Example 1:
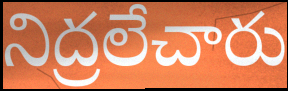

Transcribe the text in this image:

నిద్రలేచారు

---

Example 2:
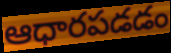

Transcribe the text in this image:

ఆధారపడడం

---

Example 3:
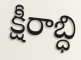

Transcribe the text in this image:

క్షీరాబ్ధి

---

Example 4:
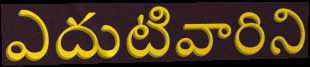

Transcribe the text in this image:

ఎదుటివారిని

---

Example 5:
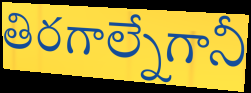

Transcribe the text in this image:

తిరగాల్నేగానీ